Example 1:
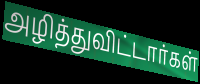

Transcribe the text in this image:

அழித்துவிட்டார்கள்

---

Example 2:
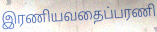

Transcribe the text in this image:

இரணியவதைப்பரணி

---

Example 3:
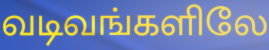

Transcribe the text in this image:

வடிவங்களிலே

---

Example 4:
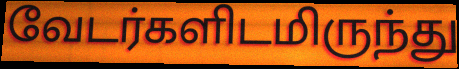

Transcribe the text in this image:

வேடர்களிடமிருந்து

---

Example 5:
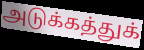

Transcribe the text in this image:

அடுக்கத்துக்